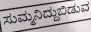
ಸುಮ್ಮನಿದ್ದುಬಿಡುವ